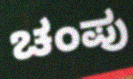
ಚಂಪು